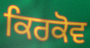
ਕਿਰਕੋਵ